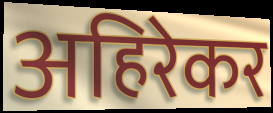
अहिरेकर